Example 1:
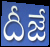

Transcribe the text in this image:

దీజే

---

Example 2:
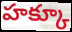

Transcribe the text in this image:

హక్కూ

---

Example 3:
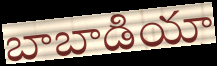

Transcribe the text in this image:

బాబాడియా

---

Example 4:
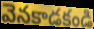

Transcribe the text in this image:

వెనకాడకండి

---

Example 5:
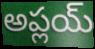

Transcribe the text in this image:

అప్లయ్